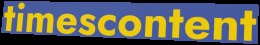
timescontent